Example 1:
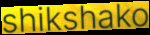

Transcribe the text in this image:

shikshako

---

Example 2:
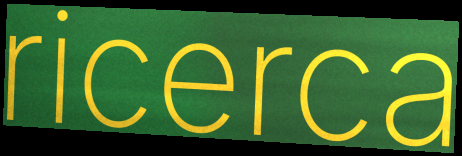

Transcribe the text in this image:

ricerca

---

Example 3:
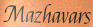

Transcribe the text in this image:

Mazhavars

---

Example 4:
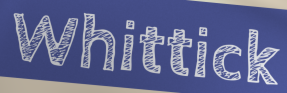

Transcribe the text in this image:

Whittick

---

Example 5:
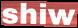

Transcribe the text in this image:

shiw